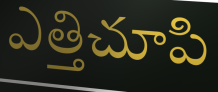
ఎత్తిచూపి